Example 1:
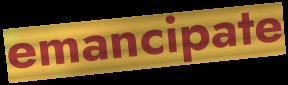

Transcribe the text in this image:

emancipate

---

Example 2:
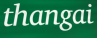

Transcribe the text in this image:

thangai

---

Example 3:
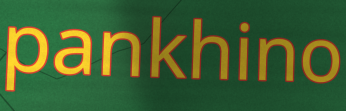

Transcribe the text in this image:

pankhino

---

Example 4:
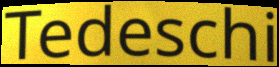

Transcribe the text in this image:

Tedeschi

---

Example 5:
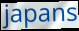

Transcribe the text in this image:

japans